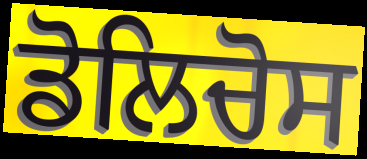
ਡੋਲਿਚੋਸ